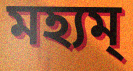
মহ্যম্